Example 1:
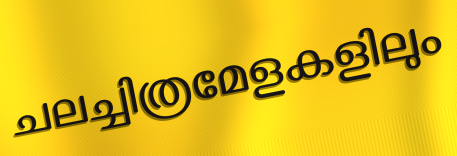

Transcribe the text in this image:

ചലച്ചിത്രമേളകളിലും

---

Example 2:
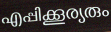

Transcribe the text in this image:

എപ്പിക്കൂര്യരും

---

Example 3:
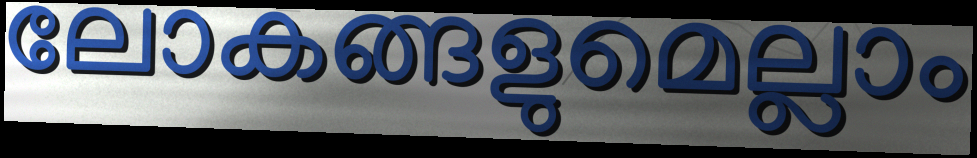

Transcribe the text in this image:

ലോകങ്ങളുമെല്ലാം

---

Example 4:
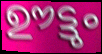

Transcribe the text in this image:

ഊട്ടും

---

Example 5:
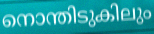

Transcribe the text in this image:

നൊന്തിടുകിലും